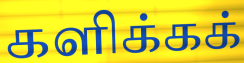
களிக்கக்